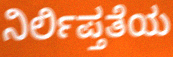
ನಿರ್ಲಿಪ್ತತೆಯ